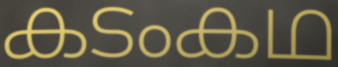
കടംകഥ